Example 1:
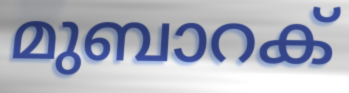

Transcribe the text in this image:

മുബാറക്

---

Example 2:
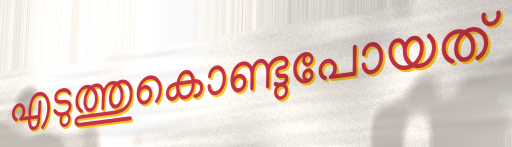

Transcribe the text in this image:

എടുത്തുകൊണ്ടുപോയത്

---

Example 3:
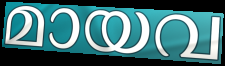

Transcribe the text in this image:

മായവ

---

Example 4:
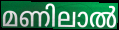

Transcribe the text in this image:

മണിലാൽ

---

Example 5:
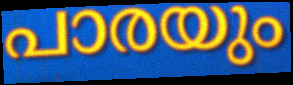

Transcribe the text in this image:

പാരയും